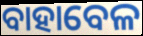
ବାହାବେଳ